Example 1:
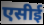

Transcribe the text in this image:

एसीई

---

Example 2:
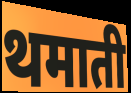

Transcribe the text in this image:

थमाती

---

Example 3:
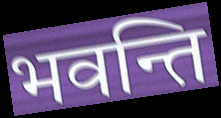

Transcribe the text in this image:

भवन्ति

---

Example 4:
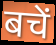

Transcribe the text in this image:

बचें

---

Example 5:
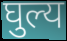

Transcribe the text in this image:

घुल्य